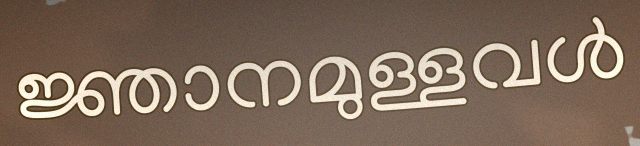
ജ്ഞാനമുള്ളവൾ